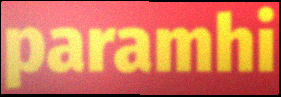
paramhi